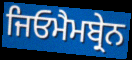
ਜਿਓਮੈਮਬ੍ਰੇਨ